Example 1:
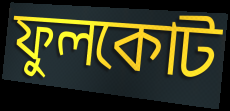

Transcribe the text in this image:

ফুলকোট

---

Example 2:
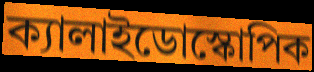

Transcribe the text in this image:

ক্যালাইডোস্কোপিক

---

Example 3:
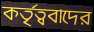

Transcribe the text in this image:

কর্তৃত্ববাদের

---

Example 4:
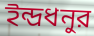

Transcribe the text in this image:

ইন্দ্রধনুর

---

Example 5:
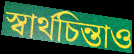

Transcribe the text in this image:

স্বার্থচিন্তাও